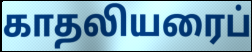
காதலியரைப்